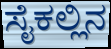
ಸೈಕಲ್ಲಿನ